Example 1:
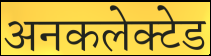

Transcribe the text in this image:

अनकलेक्टेड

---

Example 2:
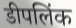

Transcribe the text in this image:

डीपलिंक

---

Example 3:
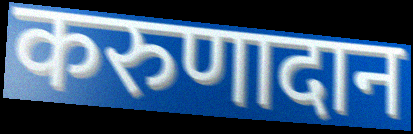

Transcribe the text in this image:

करुणादान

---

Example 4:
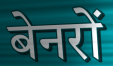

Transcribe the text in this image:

बेनरों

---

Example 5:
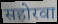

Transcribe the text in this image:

सहोरवा